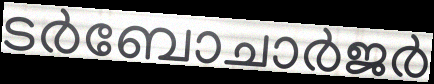
ടർബോചാർജർ